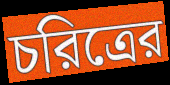
চরিত্রের